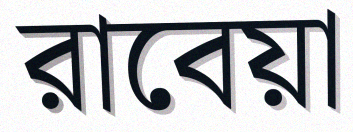
রাবেয়া